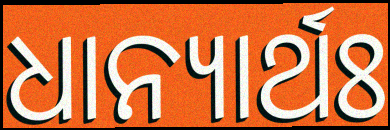
ଧାନ୍ୟାର୍ଥଃ